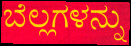
ಬೆಲ್ಲಗಳನ್ನು